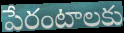
పేరంటాలకు